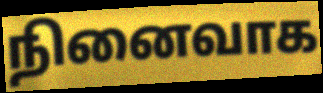
நினைவாக